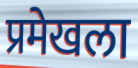
प्रमेखला